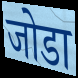
जोडा